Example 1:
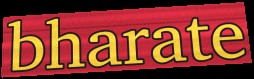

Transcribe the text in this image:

bharate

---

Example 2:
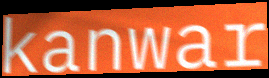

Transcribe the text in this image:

kanwar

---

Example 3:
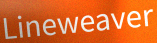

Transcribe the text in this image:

Lineweaver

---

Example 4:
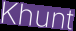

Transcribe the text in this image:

Khunt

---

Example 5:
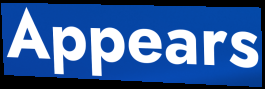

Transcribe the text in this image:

Appears